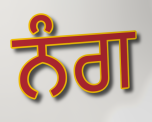
ਨੰਗ